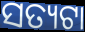
ସତ୍ୟଟା